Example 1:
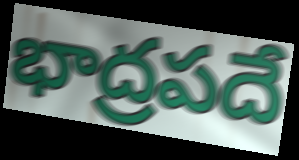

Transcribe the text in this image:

భాద్రపదే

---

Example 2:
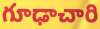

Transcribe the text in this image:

గూఢాచారి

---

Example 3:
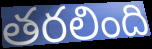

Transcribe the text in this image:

తరలింది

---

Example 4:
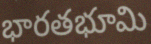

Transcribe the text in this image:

భారతభూమి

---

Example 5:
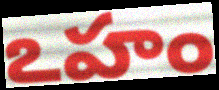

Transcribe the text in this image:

ఽహం